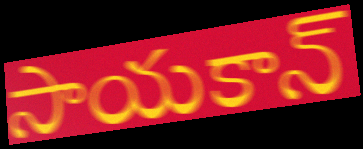
సాయకాన్